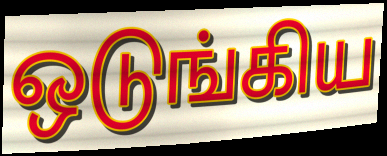
ஒடுங்கிய